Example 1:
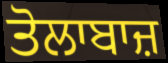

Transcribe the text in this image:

ਤੋਲਾਬਾਜ਼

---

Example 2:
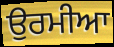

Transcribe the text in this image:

ਉਰਮੀਆ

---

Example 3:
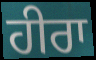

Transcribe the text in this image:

ਹੀਰਾ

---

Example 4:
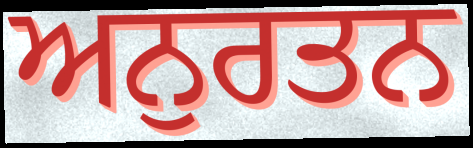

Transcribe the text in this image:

ਅਨੁਰਤਨ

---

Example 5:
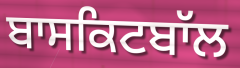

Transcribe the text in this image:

ਬਾਸਕਿਟਬਾੱਲ